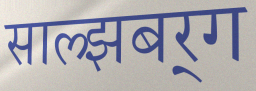
साल्झबर्ग